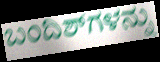
ಬಂದಿಶ್‌ಗಳನ್ನು